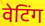
वेटिंग